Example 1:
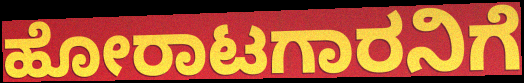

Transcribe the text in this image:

ಹೋರಾಟಗಾರನಿಗೆ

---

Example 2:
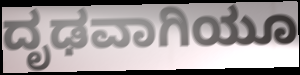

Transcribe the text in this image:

ದೃಢವಾಗಿಯೂ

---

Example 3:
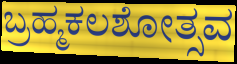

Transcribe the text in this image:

ಬ್ರಹ್ಮಕಲಶೋತ್ಸವ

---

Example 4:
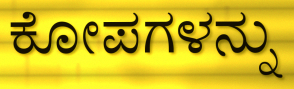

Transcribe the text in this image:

ಕೋಪಗಳನ್ನು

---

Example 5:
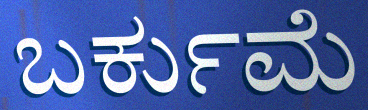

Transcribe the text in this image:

ಬರ್ಕುಮೆ